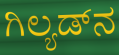
ಗಿಲ್ಯಡ್‌ನ